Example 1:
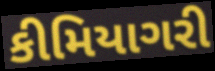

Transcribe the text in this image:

કીમિયાગરી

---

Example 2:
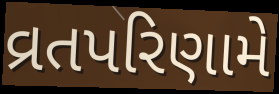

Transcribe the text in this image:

વ્રતપરિણામે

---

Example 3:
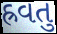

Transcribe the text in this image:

હ્રવતુ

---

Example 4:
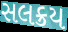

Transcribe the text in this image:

સલક્રય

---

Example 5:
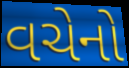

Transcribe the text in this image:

વચેનો